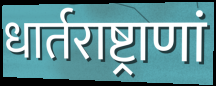
धार्तराष्ट्राणां